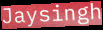
Jaysingh